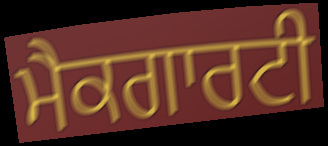
ਮੈਕਗਾਰਟੀ